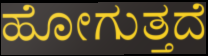
ಹೋಗುತ್ತದೆ